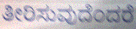
ತೀರಿಸುವುದೆಂದರೆ